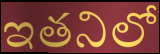
ఇతనిలో